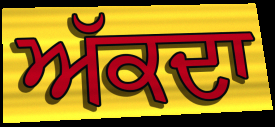
ਅੱਕਦਾ